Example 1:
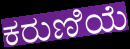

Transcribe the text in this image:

ಕರುಣಿಯೆ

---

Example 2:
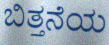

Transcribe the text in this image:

ಬಿತ್ತನೆಯ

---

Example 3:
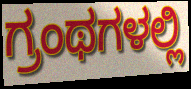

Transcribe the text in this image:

ಗ್ರಂಥಗಳಲ್ಲಿ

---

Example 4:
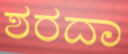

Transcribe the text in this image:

ಶರದಾ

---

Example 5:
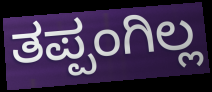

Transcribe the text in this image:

ತಪ್ಪಂಗಿಲ್ಲ